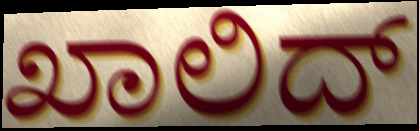
ಖಾಲಿದ್